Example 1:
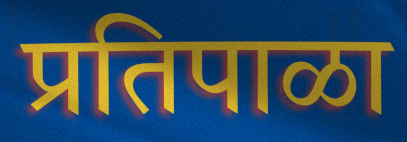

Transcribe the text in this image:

प्रतिपाळा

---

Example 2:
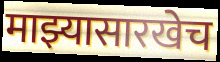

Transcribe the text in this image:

माझ्यासारखेच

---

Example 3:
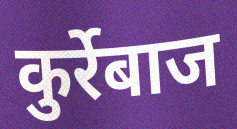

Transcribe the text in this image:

कुर्रेबाज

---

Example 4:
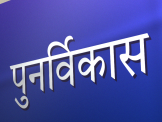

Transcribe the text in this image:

पुनर्विकास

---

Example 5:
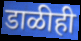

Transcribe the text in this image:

डाळीही